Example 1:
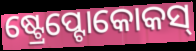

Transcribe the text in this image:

ଷ୍ଟ୍ରେପ୍ଟୋକୋକସ୍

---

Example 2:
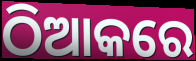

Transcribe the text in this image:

ଠିଆକରେ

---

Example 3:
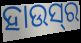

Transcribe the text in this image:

ହାଉସ୍‌ର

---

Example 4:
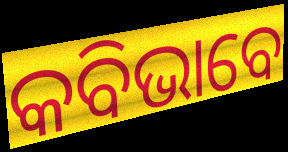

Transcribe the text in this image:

କବିଭାବେ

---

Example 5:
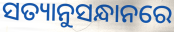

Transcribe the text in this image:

ସତ୍ୟାନୁସନ୍ଧାନରେ